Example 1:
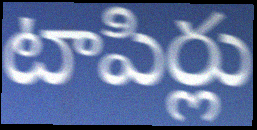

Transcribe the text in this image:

టాపిర్లు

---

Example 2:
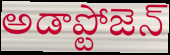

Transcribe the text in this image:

అడాప్టోజెన్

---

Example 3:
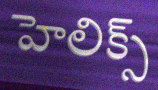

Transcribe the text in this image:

హెలిక్స్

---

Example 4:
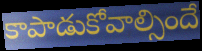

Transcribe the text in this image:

కాపాడుకోవాల్సిందే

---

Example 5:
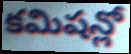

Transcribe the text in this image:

కమిషన్లో